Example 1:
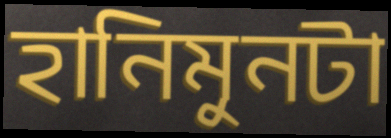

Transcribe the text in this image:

হানিমুনটা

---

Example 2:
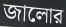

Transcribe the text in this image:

জালোর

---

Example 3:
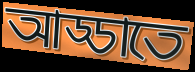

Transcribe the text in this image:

আড্ডাতে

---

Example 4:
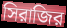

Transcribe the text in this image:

সিরাজির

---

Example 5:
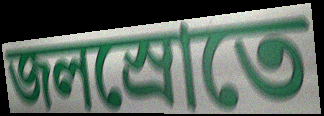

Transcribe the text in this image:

জলস্রোতে